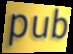
pub